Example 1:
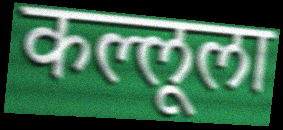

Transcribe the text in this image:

कल्लूला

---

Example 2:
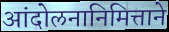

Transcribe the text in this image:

आंदोलनानिमित्ताने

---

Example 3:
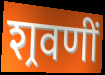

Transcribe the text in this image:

श्रवणीं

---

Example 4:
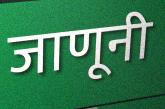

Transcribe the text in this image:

जाणूनी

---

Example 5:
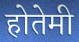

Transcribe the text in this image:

होतेमी